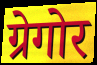
ग्रेगोर